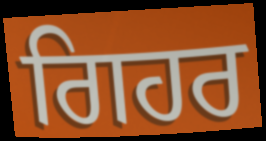
ਗਿਹਰ